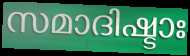
സമാദിഷ്ടാഃ